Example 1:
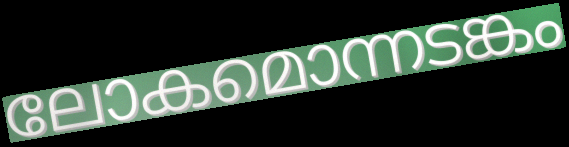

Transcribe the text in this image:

ലോകമൊന്നടങ്കം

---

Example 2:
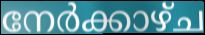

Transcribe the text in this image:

നേർക്കാഴ്ച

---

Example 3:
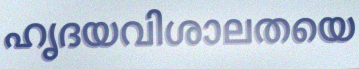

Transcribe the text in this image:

ഹൃദയവിശാലതയെ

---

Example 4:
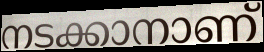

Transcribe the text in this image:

നടക്കാനാണ്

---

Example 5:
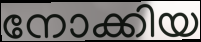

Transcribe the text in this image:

നോക്കിയ